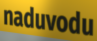
naduvodu